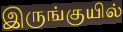
இருங்குயில்